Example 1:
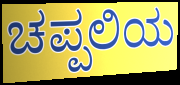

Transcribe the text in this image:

ಚಪ್ಪಲಿಯ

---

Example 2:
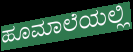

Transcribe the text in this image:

ಹೂಮಾಲೆಯಲ್ಲಿ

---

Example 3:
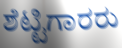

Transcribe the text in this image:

ಶೆಟ್ಟಿಗಾರರು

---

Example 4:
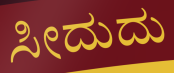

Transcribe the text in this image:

ಸೀದುದು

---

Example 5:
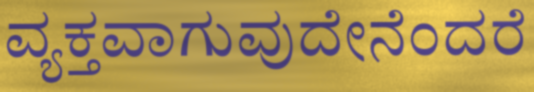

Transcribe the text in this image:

ವ್ಯಕ್ತವಾಗುವುದೇನೆಂದರೆ